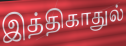
இத்திகாதுல்